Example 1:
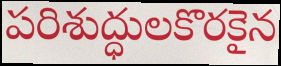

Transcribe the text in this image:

పరిశుద్ధులకొరకైన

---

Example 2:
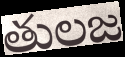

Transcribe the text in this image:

తులజ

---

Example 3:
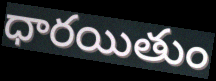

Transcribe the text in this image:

ధారయితుం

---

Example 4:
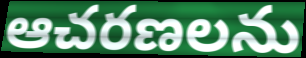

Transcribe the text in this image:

ఆచరణలను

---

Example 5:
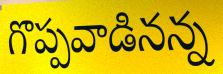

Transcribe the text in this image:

గొప్పవాడినన్న